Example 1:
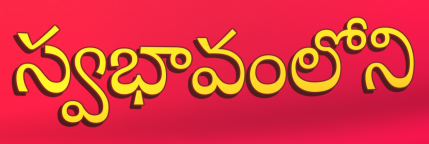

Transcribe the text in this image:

స్వభావంలోని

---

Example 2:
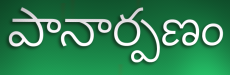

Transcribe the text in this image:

పానార్పణం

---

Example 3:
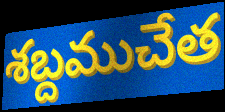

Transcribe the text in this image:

శబ్దముచేత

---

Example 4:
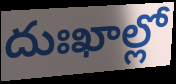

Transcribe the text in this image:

దుఃఖాల్లో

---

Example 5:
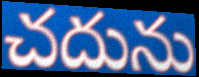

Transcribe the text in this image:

చదును